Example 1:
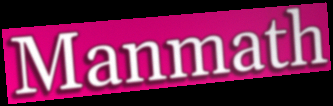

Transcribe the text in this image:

Manmath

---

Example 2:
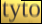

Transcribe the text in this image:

tyto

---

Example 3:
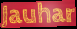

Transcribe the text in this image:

Jauhar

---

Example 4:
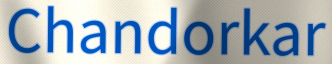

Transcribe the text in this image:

Chandorkar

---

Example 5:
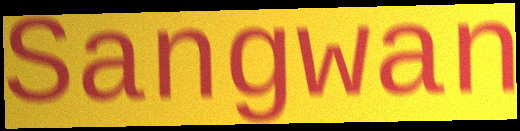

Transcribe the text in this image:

Sangwan